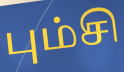
பும்சி